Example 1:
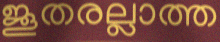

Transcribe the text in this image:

ജൂതരല്ലാത്ത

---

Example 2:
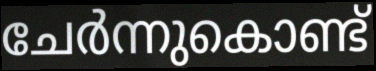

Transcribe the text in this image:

ചേർന്നുകൊണ്ട്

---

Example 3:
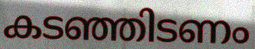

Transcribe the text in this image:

കടഞ്ഞിടണം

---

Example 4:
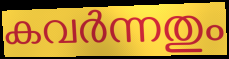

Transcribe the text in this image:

കവർന്നതും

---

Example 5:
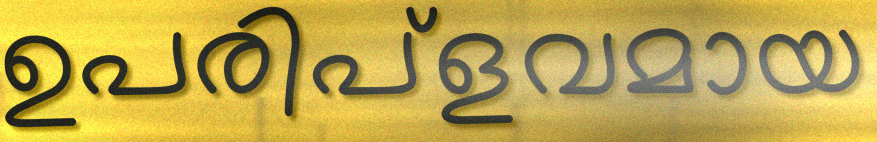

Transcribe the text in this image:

ഉപരിപ്ളവമായ